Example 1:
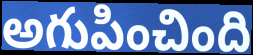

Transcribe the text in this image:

అగుపించింది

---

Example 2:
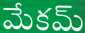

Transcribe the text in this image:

మేకమ్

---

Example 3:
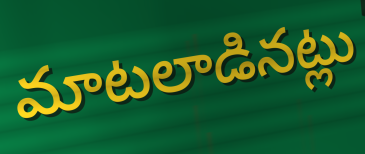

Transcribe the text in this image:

మాటలాడినట్లు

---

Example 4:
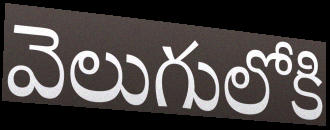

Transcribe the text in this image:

వెలుగులోకి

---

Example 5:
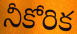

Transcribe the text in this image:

నీకోరిక